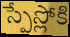
స్పేస్లోకి